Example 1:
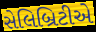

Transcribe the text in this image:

સેલિબ્રિટીએ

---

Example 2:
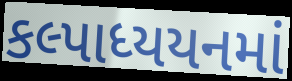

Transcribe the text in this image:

કલ્પાધ્યયનમાં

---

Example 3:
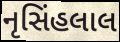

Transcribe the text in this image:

નૃસિંહલાલ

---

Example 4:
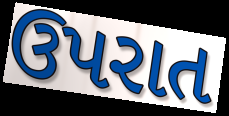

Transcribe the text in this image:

ઉપરાત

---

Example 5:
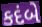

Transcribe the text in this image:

કદંબે